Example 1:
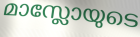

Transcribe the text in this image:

മാസ്ലോയുടെ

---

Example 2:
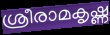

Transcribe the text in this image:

ശ്രീരാമകൃഷ്ണ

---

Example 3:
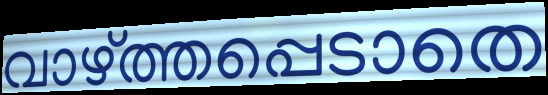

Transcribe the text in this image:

വാഴ്ത്തപ്പെടാതെ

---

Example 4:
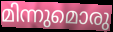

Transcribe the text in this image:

മിന്നുമൊരു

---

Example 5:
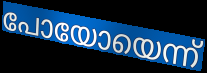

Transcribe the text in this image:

പോയോയെന്ന്